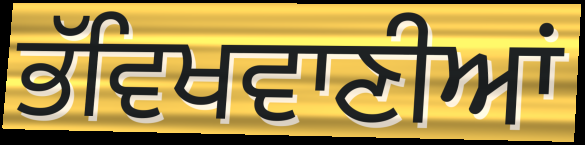
ਭੱਵਿਖਵਾਣੀਆਂ